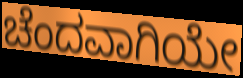
ಚೆಂದವಾಗಿಯೇ